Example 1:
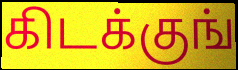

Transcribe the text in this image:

கிடக்குங்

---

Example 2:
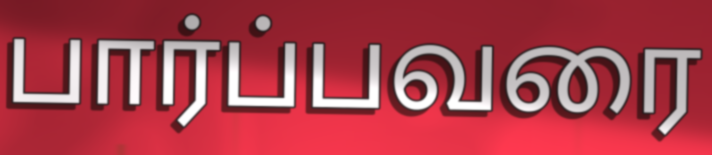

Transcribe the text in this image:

பார்ப்பவரை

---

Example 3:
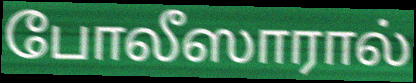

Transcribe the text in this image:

போலீஸாரால்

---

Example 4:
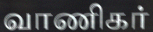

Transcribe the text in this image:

வாணிகர்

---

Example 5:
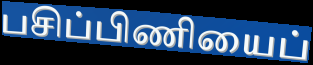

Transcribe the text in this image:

பசிப்பிணியைப்